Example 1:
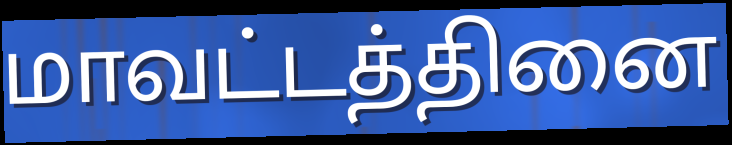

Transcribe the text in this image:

மாவட்டத்தினை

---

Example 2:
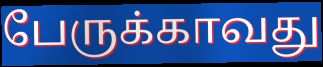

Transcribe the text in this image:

பேருக்காவது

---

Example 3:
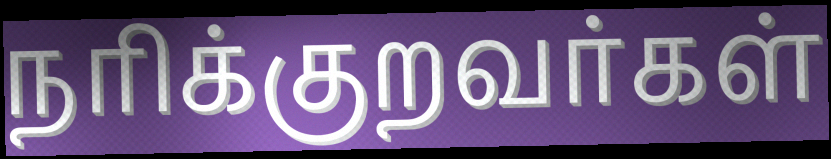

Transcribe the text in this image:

நரிக்குறவர்கள்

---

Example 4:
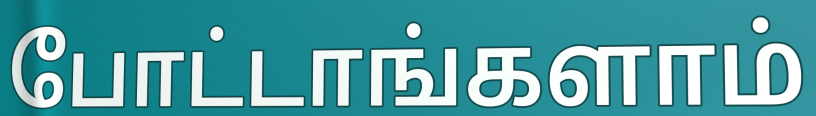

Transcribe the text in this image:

போட்டாங்களாம்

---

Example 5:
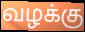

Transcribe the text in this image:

வழக்கு